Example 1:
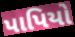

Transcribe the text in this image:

પાપિયો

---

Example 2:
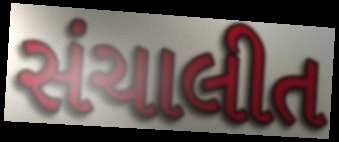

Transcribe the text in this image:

સંચાલીત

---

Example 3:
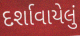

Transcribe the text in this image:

દર્શાવાયેલું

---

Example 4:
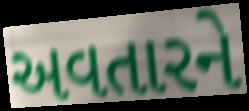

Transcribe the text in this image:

અવતારને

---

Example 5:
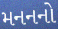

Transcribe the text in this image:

મનનનો